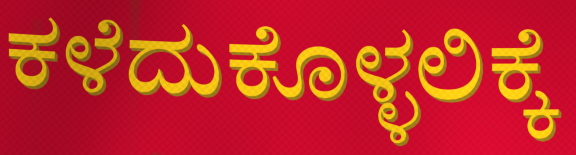
ಕಳೆದುಕೊಳ್ಳಲಿಕ್ಕೆ